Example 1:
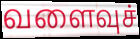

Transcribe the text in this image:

வளைவுச்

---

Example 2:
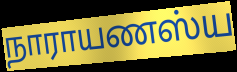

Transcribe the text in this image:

நாராயணஸ்ய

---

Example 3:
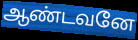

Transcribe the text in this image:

ஆண்டவனே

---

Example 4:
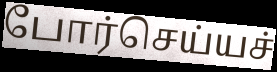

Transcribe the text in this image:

போர்செய்யச்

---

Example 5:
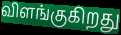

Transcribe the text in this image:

விளங்குகிறது